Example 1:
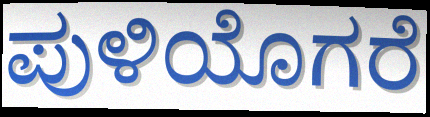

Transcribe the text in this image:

ಪುಳಿಯೊಗರೆ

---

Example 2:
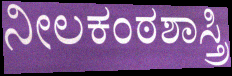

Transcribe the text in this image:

ನೀಲಕಂಠಶಾಸ್ತ್ರಿ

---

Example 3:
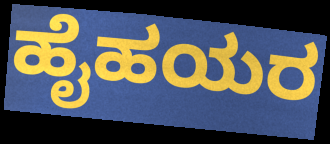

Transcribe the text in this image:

ಹೈಹಯರ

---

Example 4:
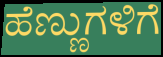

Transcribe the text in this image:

ಹೆಣ್ಣುಗಳಿಗೆ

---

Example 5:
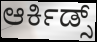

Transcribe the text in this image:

ಆರ್ಕಿಡ್ಸ್